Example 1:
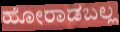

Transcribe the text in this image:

ಹೋರಾಡಬಲ್ಲ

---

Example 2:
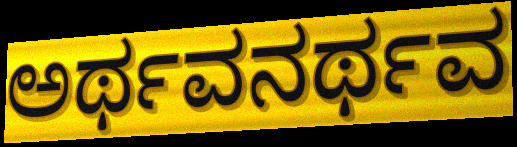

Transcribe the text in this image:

ಅರ್ಥವನರ್ಥವ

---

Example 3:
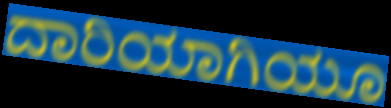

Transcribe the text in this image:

ದಾರಿಯಾಗಿಯೂ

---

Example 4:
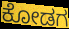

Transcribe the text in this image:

ಕೋಡಗ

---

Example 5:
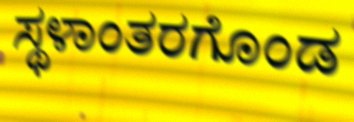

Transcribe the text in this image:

ಸ್ಥಳಾಂತರಗೊಂಡ